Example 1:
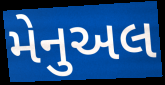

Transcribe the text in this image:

મેનુઅલ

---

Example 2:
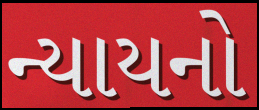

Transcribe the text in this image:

ન્યાયનો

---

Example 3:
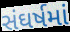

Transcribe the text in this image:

સંઘર્ષમાં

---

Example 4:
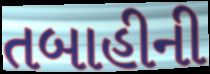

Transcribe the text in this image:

તબાહીની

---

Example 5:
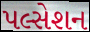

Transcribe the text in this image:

પલ્સેશન